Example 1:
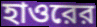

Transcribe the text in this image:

হাওরের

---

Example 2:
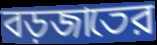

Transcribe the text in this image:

বড়জাতের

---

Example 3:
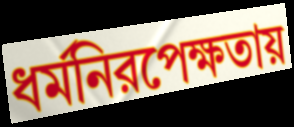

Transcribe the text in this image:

ধর্মনিরপেক্ষতায়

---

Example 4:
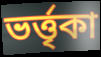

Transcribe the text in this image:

ভর্ত্তৃকা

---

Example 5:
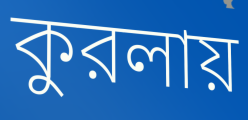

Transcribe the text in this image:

কুরলায়